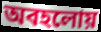
অবহলোয়